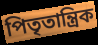
পিতৃতান্ত্ৰিক